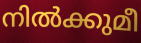
നിൽക്കുമീ